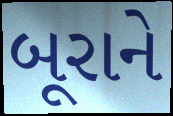
બૂરાને